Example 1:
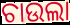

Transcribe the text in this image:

ଚାଉଲା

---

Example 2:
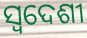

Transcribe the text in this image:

ସ୍ଵଦେଶୀ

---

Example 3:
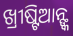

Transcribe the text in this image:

ଖ୍ରୀଷ୍ଟିଆନ୍ଙ୍କ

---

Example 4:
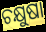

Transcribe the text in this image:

ଚକ୍ଷୁଷା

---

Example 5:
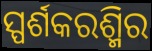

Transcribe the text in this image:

ସ୍ପର୍ଶକରଶ୍ମିର